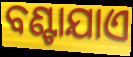
ବଣ୍ଟାଯାଏ